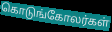
கொடுங்கோலர்கள்